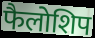
फैलोशिप